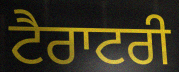
ਟੈਰਾਟਰੀ